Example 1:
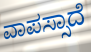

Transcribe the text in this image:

ವಾಪಸ್ಸಾದೆ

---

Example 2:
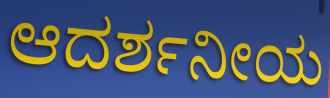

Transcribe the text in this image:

ಆದರ್ಶನೀಯ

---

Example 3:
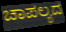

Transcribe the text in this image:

ಚಾಪಲ್ಯದ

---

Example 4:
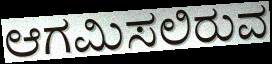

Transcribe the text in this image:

ಆಗಮಿಸಲಿರುವ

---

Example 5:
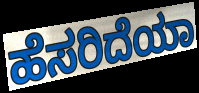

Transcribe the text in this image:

ಹೆಸರಿದೆಯಾ